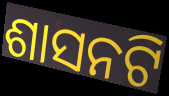
ଶାସନଟି